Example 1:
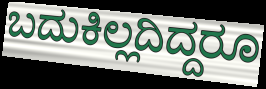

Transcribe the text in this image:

ಬದುಕಿಲ್ಲದಿದ್ದರೂ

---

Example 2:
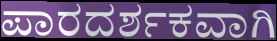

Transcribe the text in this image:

ಪಾರದರ್ಶಕವಾಗಿ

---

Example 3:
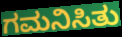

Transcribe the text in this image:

ಗಮನಿಸಿತು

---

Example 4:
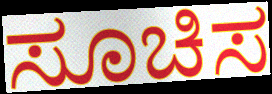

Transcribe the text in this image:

ಸೂಚಿಸ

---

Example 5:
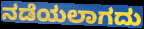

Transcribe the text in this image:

ನಡೆಯಲಾಗದು